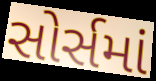
સોર્સમાં